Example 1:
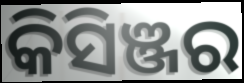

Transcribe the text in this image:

କିସିଞ୍ଜର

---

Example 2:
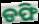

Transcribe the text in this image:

ଡଫି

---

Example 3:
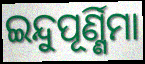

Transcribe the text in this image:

ଇନ୍ଦୁପୂର୍ଣ୍ଣିମା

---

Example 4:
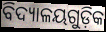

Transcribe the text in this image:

ବିଦ୍ୟାଳୟଗୁଡ଼ିକ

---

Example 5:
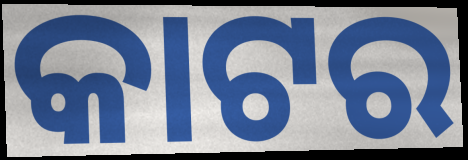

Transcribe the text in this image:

କାଟର